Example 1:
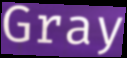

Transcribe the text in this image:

Gray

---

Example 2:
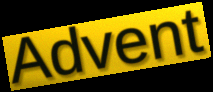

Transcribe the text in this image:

Advent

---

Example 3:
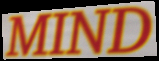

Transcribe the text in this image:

MIND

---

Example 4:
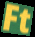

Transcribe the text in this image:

Ft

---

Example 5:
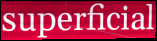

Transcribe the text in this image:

superficial